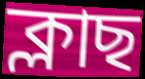
ক্লাছ